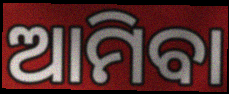
ଆମିବା